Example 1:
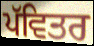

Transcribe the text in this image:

ਪੱਵਿਤਰ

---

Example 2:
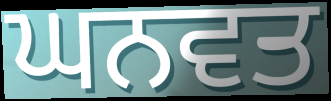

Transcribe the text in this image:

ਘਨਵਤ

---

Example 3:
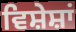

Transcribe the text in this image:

ਵਿਸ਼ੇਸ਼ਾਂ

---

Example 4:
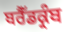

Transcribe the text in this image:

ਬਰੈੱਡਕ੍ਰੰਬ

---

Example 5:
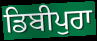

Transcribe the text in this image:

ਡਿਬੀਪੁਰਾ